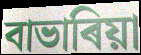
বাভাৰিয়া